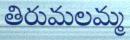
తిరుమలమ్మ